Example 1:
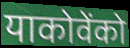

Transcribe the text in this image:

याकोवेंको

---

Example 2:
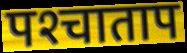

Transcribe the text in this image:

पश्चाताप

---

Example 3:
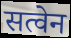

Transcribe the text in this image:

सत्वेन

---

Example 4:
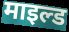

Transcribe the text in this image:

माइल्ड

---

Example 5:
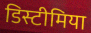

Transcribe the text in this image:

डिस्टीमिया